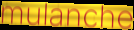
mulanche